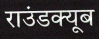
राउंडक्यूब